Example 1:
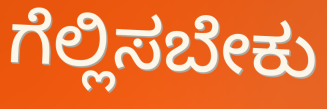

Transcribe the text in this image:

ಗೆಲ್ಲಿಸಬೇಕು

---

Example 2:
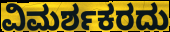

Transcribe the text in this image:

ವಿಮರ್ಶಕರದು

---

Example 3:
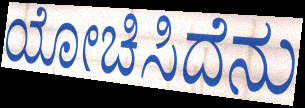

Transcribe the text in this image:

ಯೋಚಿಸಿದೆನು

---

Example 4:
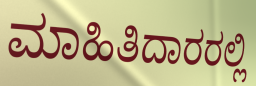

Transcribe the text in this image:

ಮಾಹಿತಿದಾರರಲ್ಲಿ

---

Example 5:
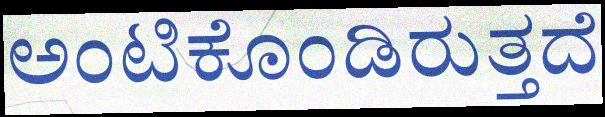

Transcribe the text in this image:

ಅಂಟಿಕೊಂಡಿರುತ್ತದೆ